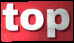
top